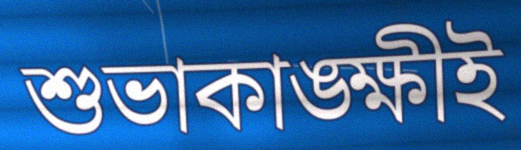
শুভাকাঙ্ক্ষীই